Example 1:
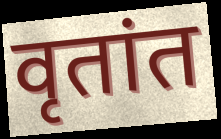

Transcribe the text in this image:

वृतांत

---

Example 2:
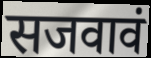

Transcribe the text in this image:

सजवावं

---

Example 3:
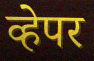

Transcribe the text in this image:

व्हेपर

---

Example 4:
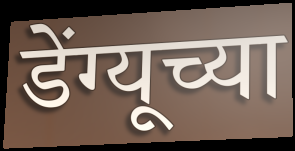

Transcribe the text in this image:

डेंग्यूच्या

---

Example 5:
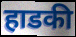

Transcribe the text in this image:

हाडकी